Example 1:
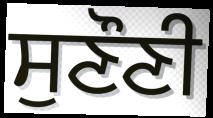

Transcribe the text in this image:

ਸੁਣੌਣੀ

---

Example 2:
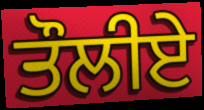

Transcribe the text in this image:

ਤੌਲੀਏ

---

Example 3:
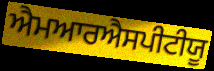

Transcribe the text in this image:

ਐਮਆਰਐਸਪੀਟੀਯੂ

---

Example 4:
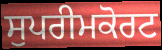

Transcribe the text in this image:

ਸੁਪਰੀਮਕੋਰਟ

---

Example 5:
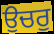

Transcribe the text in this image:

ਉਚਰੁ